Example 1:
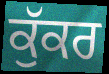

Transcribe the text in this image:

ਕੁੱਕਰ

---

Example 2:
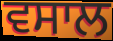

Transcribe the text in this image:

ਵਸਾਲ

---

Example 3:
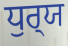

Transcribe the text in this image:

ਧੁਰ੍‍ਯ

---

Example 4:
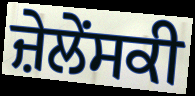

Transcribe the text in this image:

ਜ਼ੇਲੇਂਸਕੀ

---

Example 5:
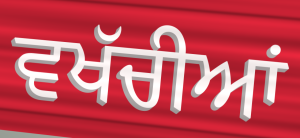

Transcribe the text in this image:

ਵਖੱਚੀਆਂ